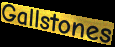
Gallstones